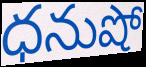
ధనుషో